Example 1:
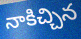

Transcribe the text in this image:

నాకిచ్చిన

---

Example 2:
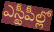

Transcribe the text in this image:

ఎస్టీపీల్లో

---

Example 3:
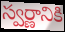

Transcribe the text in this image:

స్వర్ణానికి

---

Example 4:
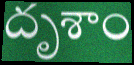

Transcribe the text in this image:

దృశాం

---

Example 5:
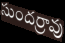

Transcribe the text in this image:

సుందర్రావు